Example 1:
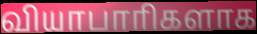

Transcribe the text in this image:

வியாபாரிகளாக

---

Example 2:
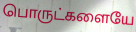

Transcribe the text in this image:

பொருட்களையே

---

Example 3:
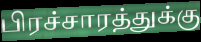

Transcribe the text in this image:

பிரச்சாரத்துக்கு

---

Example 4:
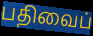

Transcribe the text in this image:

பதிவைப்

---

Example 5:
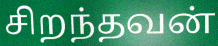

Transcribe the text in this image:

சிறந்தவன்